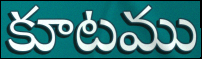
కూటము